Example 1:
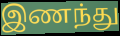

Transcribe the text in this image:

இணந்து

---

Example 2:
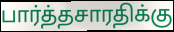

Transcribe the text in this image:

பார்த்தசாரதிக்கு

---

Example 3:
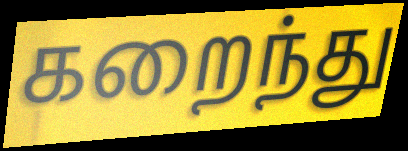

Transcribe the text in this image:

கறைந்து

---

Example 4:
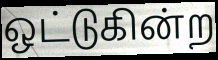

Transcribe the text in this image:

ஒட்டுகின்ற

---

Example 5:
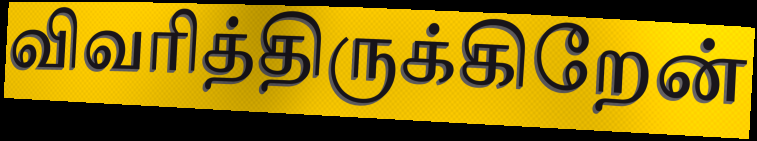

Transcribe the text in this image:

விவரித்திருக்கிறேன்